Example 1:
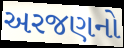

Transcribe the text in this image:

અરજણનો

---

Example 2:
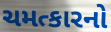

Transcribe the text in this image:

ચમત્કારનો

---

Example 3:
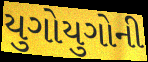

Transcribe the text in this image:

યુગોયુગોની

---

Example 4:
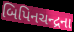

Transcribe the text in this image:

બિપિનચન્દ્રના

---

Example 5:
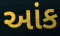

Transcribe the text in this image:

આંક